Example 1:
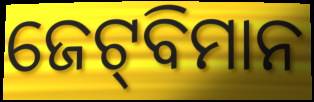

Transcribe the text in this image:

ଜେଟ୍‌ବିମାନ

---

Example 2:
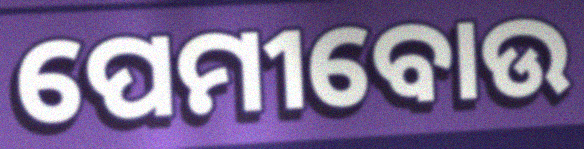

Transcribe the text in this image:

ପେମୀବୋଉ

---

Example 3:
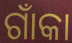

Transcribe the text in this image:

ଗାଁକା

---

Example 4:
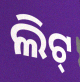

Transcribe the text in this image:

ଲିଟ୍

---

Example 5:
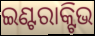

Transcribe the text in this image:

ଇଣ୍ଟରାକ୍ଟିଭ